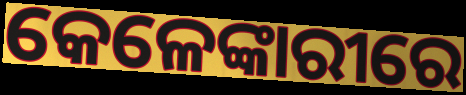
କେଳେଙ୍କାରୀରେ